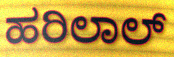
ಹರಿಲಾಲ್